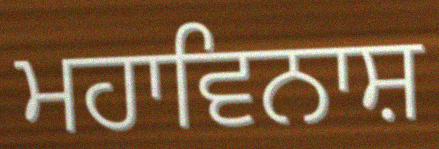
ਮਹਾਵਿਨਾਸ਼